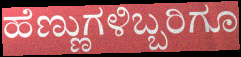
ಹೆಣ್ಣುಗಳಿಬ್ಬರಿಗೂ